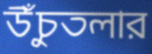
উঁচুতলার